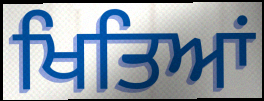
ਖਿਤਿਆਂ